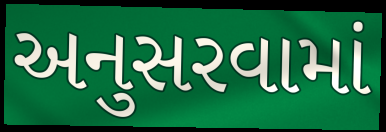
અનુસરવામાં